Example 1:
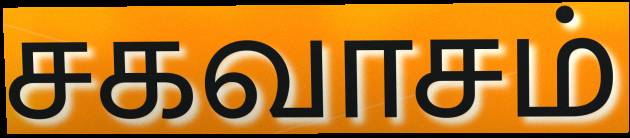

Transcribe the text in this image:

சகவாசம்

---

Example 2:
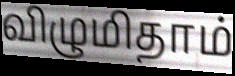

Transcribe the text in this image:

விழுமிதாம்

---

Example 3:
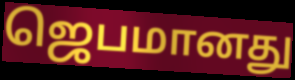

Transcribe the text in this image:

ஜெபமானது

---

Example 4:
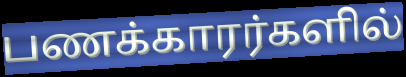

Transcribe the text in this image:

பணக்காரர்களில்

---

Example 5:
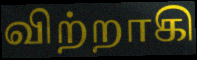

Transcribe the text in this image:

விற்றாகி